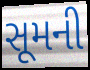
સૂમની